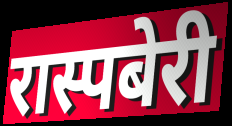
रास्पबेरी